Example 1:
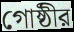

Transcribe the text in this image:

গোষ্ঠীর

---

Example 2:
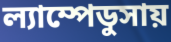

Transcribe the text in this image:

ল্যাম্পেডুসায়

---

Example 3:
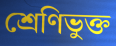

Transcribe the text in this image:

শ্রেণিভুক্ত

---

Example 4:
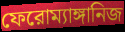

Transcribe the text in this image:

ফেরোম্যাঙ্গানিজ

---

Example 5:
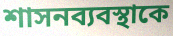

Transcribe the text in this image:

শাসনব্যবস্থাকে